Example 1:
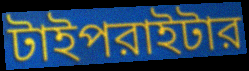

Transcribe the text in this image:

টাইপরাইটার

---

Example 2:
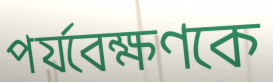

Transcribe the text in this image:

পর্যবেক্ষণকে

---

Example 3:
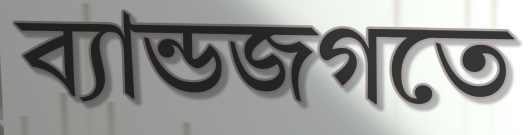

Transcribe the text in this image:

ব্যান্ডজগতে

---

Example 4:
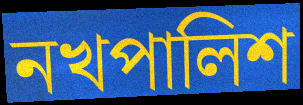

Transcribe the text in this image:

নখপালিশ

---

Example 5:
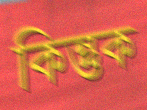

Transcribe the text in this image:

কিন্তুক